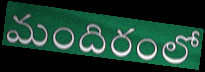
మందిరంలో